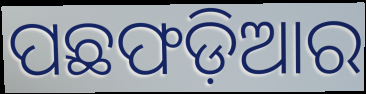
ପଛଫଡ଼ିଆର